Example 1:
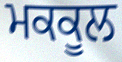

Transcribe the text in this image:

ਮਕਕੂਲ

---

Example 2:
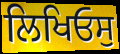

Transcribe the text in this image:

ਲਿਖਿਓਸੁ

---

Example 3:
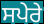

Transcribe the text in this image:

ਸਪੇਰੇ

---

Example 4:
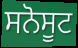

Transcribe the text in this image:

ਸਨੋਸੂਟ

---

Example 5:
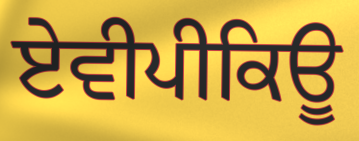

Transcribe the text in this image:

ਏਵੀਪੀਕਿਊ